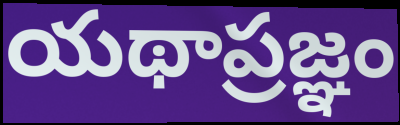
యథాప్రజ్ఞం